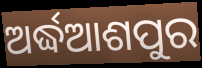
ଅର୍ଦ୍ଧଆଶପୁର